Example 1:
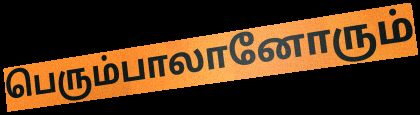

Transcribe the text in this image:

பெரும்பாலானோரும்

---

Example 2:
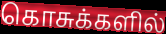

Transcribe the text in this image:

கொசுக்களில்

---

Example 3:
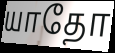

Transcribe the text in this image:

யாதோ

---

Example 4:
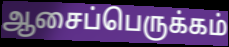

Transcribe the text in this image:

ஆசைப்பெருக்கம்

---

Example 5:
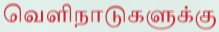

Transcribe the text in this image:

வெளிநாடுகளுக்கு